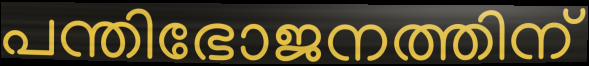
പന്തിഭോജനത്തിന്